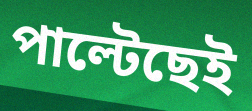
পাল্টেছেই